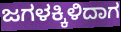
ಜಗಳಕ್ಕಿಳಿದಾಗ